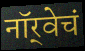
नॉर्वेचं